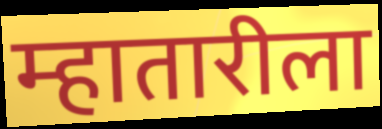
म्हातारीला